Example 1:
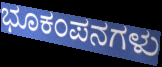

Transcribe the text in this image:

ಭೂಕಂಪನಗಳು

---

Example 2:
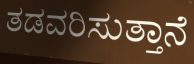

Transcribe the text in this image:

ತಡವರಿಸುತ್ತಾನೆ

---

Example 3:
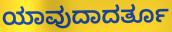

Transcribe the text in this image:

ಯಾವುದಾದರ್ತೂ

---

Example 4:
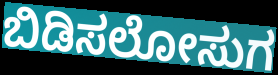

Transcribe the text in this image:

ಬಿಡಿಸಲೋಸುಗ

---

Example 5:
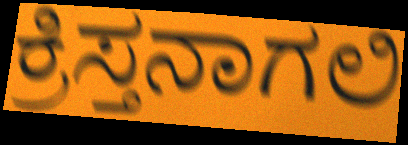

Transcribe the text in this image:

ಕ್ರಿಸ್ತನಾಗಲಿ